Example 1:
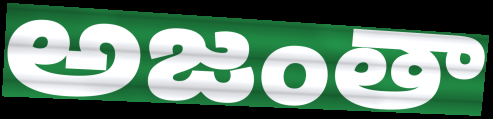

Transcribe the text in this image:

అజంతా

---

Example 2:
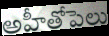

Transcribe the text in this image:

అహీతోపెలు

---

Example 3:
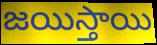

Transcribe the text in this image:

జయిస్తాయి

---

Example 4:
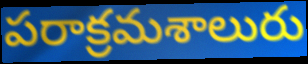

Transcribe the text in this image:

పరాక్రమశాలురు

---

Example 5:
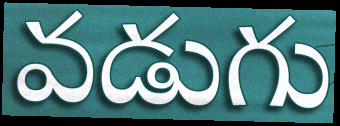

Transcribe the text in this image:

వడుగు